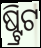
ଷ୍ଟ୍ରିଟ